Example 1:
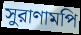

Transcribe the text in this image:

সুরাণামপি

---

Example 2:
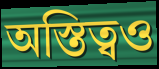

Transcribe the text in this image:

অস্তিত্বও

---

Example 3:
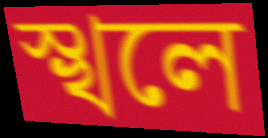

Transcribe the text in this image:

স্খলে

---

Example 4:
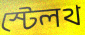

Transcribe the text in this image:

স্টেলথ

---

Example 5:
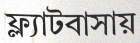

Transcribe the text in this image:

ফ্ল্যাটবাসায়